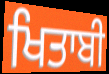
ਖਿਤਾਬੀ